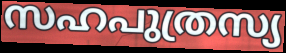
സഹപുത്രസ്യ